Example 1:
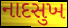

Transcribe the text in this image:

નાદસુખ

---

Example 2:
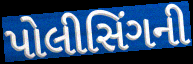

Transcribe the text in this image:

પોલીસિંગની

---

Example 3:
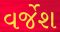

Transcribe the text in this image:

વર્જેશ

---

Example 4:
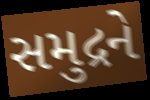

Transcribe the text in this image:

સમુદ્રને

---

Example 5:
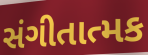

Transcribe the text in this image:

સંગીતાત્મક